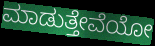
ಮಾಡುತ್ತೇವೆಯೋ